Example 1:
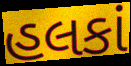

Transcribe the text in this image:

હલકાં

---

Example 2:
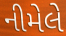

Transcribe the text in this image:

નીમેલે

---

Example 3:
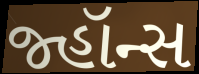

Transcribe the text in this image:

જ્હૉન્સ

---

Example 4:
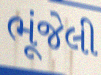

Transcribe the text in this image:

ભૂંજેલી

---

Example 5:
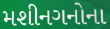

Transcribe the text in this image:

મશીનગનોના